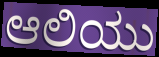
ಆಲಿಯು